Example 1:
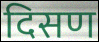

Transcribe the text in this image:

दिसण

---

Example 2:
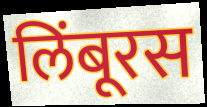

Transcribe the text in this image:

लिंबूरस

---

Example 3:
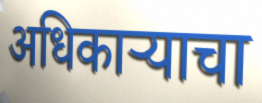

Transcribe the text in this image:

अधिकार्‍याचा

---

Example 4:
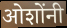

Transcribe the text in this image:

ओशोंनी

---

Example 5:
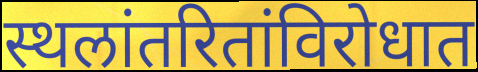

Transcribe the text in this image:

स्थलांतरितांविरोधात